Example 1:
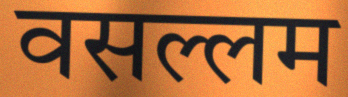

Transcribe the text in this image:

वसल्लम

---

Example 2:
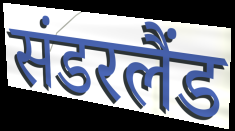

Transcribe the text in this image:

संडरलैंड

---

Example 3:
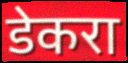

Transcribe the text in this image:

डेकरा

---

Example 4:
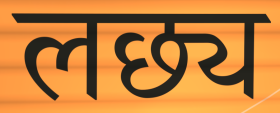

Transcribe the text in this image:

लछ्य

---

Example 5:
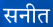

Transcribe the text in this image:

सनीत